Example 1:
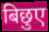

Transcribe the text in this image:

बिछुए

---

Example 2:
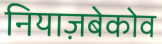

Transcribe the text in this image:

नियाज़बेकोव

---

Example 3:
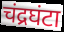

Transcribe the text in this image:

चंद्रघंटा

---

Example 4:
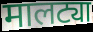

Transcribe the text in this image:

मालट्या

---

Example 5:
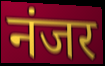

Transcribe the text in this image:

नंजर